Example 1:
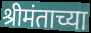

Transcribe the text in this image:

श्रीमंताच्या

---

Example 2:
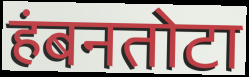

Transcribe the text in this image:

हंबनतोटा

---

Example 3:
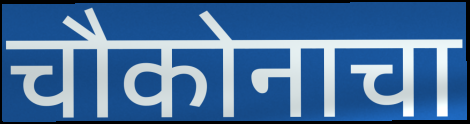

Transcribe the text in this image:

चौकोनाचा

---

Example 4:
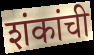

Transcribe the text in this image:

शंकांची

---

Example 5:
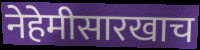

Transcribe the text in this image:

नेहेमीसारखाच